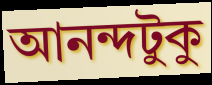
আনন্দটুকু